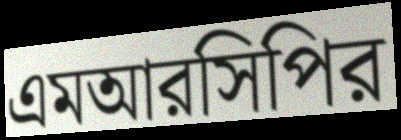
এমআরসিপির